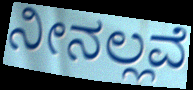
ನೀನಲ್ಲವೆ